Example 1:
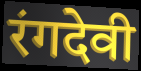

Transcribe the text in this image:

रंगदेवी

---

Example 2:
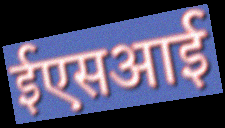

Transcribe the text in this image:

ईएसआई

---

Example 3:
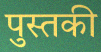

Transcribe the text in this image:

पुस्तकी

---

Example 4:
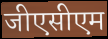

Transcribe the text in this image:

जीएसीएम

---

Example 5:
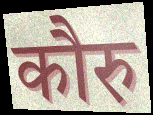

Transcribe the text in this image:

कौरु